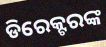
ଡିରେକ୍ଟରଙ୍କ